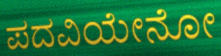
ಪದವಿಯೇನೋ